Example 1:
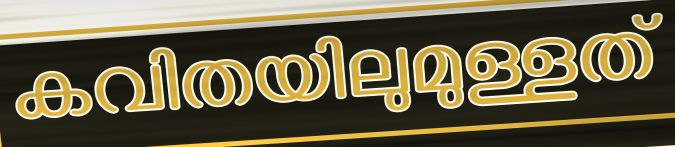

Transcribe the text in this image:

കവിതയിലുമുള്ളത്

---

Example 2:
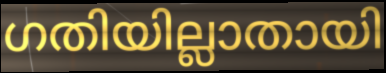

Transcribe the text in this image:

ഗതിയില്ലാതായി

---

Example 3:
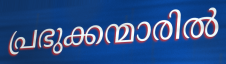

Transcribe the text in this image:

പ്രഭുക്കന്മാരിൽ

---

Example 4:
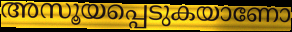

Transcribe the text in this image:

അസൂയപ്പെടുകയാണോ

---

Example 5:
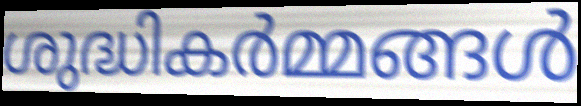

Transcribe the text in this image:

ശുദ്ധികർമ്മങ്ങൾ